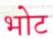
भोट